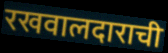
रखवालदाराची